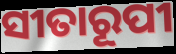
ସୀତାରୂପୀ